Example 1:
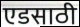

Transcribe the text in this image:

एडसाठी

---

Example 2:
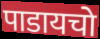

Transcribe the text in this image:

पाडायचो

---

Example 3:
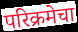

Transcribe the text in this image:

परिक्रमेचा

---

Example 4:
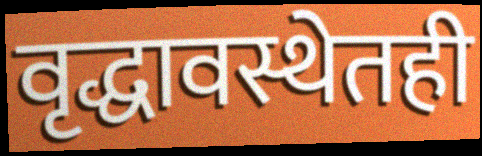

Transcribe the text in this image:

वृद्धावस्थेतही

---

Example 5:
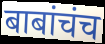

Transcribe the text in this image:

बाबांचंच